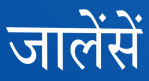
जालेंसें